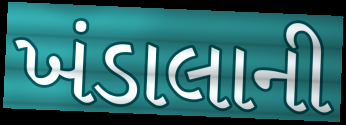
ખંડાલાની